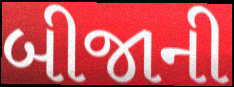
બીજાની